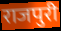
राजपुरी